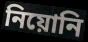
নিয়োনি